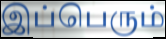
இப்பெரும்